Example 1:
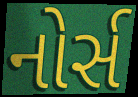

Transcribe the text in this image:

નોર્સ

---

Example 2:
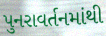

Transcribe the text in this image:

પુનરાવર્તનમાંથી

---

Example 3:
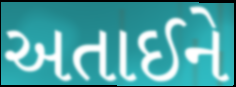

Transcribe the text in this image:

અતાઈને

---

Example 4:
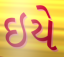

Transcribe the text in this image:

ઇયે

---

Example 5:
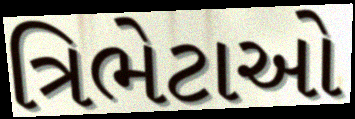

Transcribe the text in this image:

ત્રિભેટાઓ